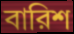
বারিশ